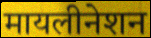
मायलीनेशन